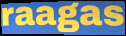
raagas